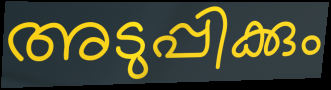
അടുപ്പിക്കും